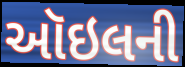
ઑઇલની